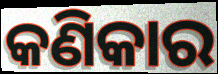
କଣିକାର